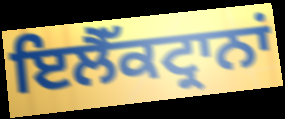
ਇਲੈੱਕਟ੍ਰਾਨਾਂ